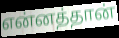
என்னத்தான்